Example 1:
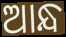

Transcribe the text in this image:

ଆନ୍ଧ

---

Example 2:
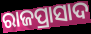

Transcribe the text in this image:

ରାଜପ୍ରାସାଦ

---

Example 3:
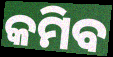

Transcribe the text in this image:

କମିବ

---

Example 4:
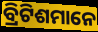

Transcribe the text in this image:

ବ୍ରିଟିଶମାନେ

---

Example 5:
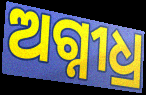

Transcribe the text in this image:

ଅଗ୍ନୀଧ୍ର